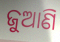
ଜୁଆଣି